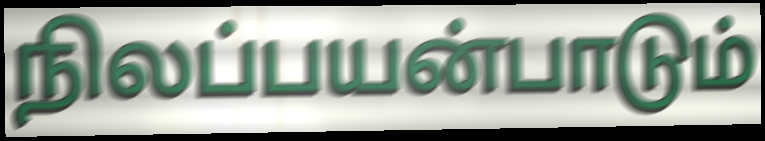
நிலப்பயன்பாடும்